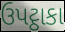
ઉપટ્ઠાકા